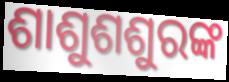
ଶାଶୁଶଶୁରଙ୍କ